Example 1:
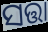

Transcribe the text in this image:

ସତ୍ତା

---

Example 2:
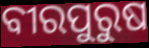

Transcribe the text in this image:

ବୀରପୁରୁଷ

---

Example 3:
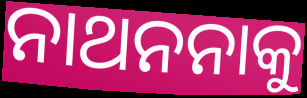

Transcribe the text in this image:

ନାଥନନାକୁ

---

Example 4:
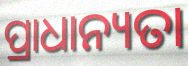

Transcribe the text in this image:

ପ୍ରାଧାନ୍ୟତା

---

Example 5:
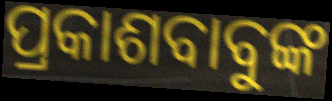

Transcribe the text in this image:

ପ୍ରକାଶବାବୁଙ୍କ